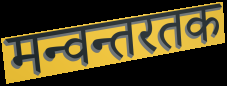
मन्वन्तरतक